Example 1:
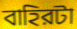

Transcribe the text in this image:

বাহিরটা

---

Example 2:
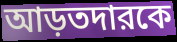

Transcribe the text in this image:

আড়তদারকে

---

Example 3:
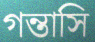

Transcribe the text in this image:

গন্তাসি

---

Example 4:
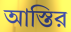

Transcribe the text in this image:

আস্তির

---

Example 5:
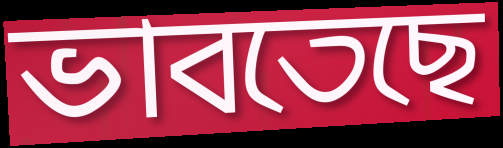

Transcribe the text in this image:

ভাবতেছে